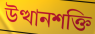
উত্থানশক্তি